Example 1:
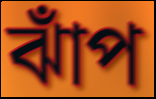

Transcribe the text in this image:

ঝাঁপ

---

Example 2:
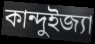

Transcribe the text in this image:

কান্দুইজ্যা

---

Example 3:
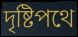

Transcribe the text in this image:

দৃষ্টিপথে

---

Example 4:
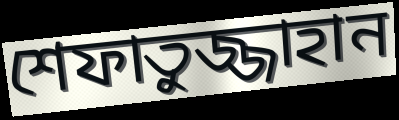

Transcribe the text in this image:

শেফাতুজ্জাহান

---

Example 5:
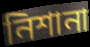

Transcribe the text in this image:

নিশানা